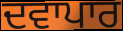
ਦਵਾਪਾਰ